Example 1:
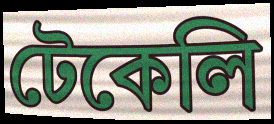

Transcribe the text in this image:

টেকেলি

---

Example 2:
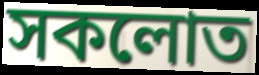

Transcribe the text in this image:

সকলোত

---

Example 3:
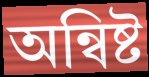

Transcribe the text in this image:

অন্বিষ্ট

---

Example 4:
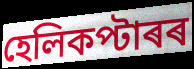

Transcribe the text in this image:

হেলিকপ্টাৰৰ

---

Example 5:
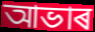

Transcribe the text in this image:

আভাৰ